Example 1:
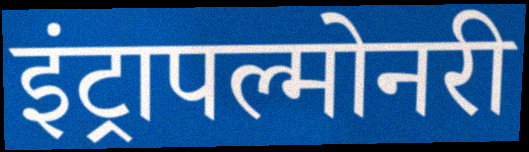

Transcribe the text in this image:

इंट्रापल्मोनरी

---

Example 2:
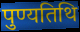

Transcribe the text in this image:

पुण्यतिथि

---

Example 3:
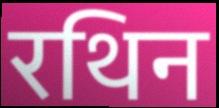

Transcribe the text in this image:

रथिन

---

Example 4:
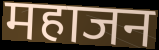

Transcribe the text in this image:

महाजन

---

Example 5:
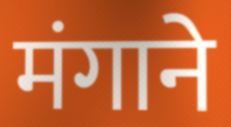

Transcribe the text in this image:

मंगाने